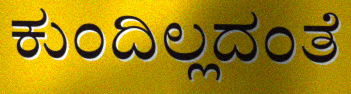
ಕುಂದಿಲ್ಲದಂತೆ